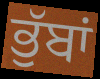
ਭੁੱਬਾਂ